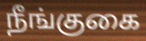
நீங்குகை